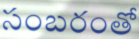
సంబరంతో